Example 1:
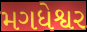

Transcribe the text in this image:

મગધેશ્વર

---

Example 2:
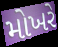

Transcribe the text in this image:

મોખરે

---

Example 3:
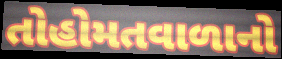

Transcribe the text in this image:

તોહોમતવાળાનો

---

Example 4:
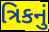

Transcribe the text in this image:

ત્રિકનું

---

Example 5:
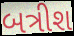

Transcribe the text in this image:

બત્રીશ